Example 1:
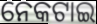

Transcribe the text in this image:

ନେକଟାଇ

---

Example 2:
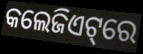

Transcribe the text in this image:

କଲେଜିଏଟ୍‌ରେ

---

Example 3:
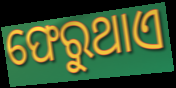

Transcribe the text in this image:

ଫେରୁଥାଏ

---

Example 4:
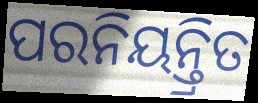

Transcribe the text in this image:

ପରନିୟନ୍ତ୍ରିତ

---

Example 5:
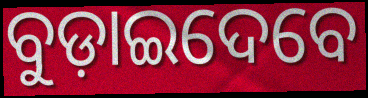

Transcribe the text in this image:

ବୁଡ଼ାଇଦେବେ